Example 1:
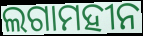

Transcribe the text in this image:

ଲଗାମହୀନ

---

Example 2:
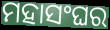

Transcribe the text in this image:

ମହାସଂଘର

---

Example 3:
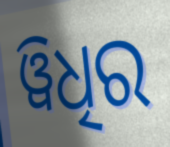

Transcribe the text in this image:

ୱିଧିର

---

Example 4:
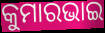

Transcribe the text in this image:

କୁମାରଭାଇ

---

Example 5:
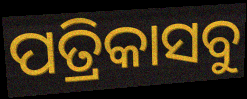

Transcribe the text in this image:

ପତ୍ରିକାସବୁ